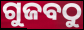
ଗୁଜବଠୁ